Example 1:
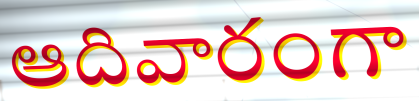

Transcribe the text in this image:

ఆదివారంగా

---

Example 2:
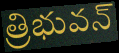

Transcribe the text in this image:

త్రిభువన్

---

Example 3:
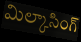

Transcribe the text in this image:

మిల్కాసింగ్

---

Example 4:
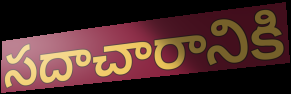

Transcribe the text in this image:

సదాచారానికి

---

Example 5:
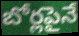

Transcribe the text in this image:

బోర్లపైనే